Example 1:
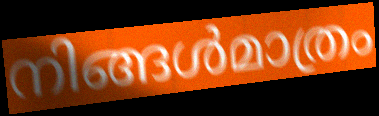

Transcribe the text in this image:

നിങ്ങൾമാത്രം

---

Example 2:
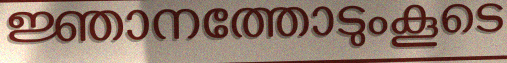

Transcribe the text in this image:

ജ്ഞാനത്തോടുംകൂടെ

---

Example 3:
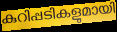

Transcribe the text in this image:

കുറിപ്പടികളുമായി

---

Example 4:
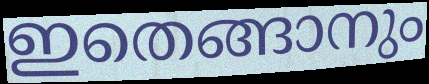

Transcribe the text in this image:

ഇതെങ്ങാനും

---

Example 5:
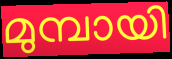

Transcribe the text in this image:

മുമ്പായി